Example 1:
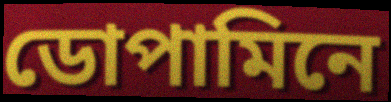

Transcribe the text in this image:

ডোপামিনে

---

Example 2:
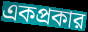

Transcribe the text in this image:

একপ্রকার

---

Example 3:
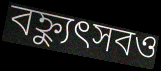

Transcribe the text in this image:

বহ্ন্যুৎসবও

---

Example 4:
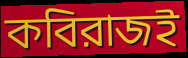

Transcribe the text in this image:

কবিরাজই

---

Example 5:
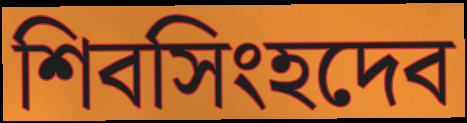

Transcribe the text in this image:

শিবসিংহদেব